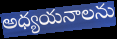
అధ్యయనాలను